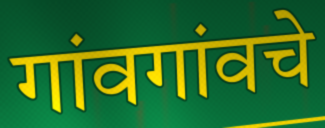
गांवगांवचे